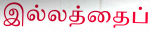
இல்லத்தைப்